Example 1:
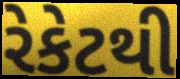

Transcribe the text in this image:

રેકેટથી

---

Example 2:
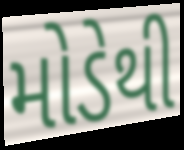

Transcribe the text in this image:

મોડેથી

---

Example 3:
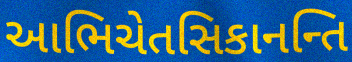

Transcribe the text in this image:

આભિચેતસિકાનન્તિ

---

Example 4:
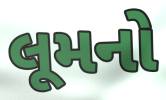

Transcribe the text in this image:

લૂમનો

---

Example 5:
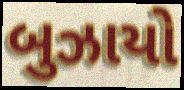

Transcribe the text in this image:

બુઝાયો